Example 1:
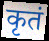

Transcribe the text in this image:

कृतं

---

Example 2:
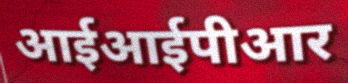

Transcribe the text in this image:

आईआईपीआर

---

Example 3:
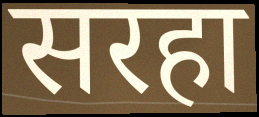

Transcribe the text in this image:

सरहा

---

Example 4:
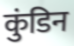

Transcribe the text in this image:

कुंडिन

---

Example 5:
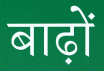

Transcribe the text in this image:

बाढ़ों